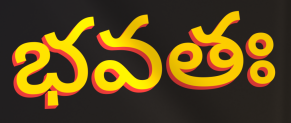
భవతః